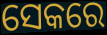
ସେକରେ